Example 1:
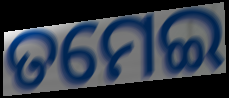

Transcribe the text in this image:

ତମେଇ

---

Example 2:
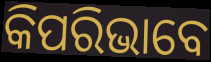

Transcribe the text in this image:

କିପରିଭାବେ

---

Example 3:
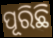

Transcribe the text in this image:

ପୂରିଛି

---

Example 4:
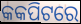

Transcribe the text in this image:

କକପିଟରେ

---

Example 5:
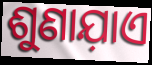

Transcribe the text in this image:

ଶୁଣାଯ଼ାଏ